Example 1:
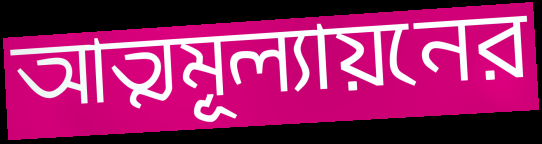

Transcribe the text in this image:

আত্মমূল্যায়নের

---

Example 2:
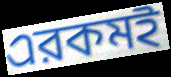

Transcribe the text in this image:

এরকমই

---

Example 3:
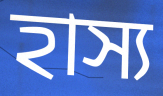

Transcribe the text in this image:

হাস্য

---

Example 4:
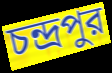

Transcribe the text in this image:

চন্দ্রপুর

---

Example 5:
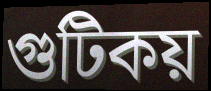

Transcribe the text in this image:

গুটিকয়